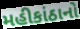
મહીકાંઠાનો